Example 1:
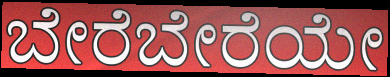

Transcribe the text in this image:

ಬೇರೆಬೇರೆಯೇ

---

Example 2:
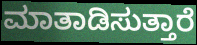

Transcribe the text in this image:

ಮಾತಾಡಿಸುತ್ತಾರೆ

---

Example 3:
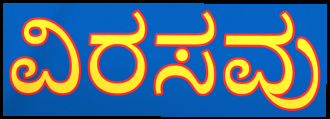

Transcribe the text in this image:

ವಿರಸವು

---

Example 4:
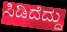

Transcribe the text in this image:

ಸಿಡಿದೆದ್ದು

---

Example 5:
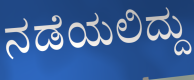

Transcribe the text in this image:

ನಡೆಯಲಿದ್ದು